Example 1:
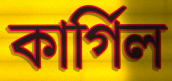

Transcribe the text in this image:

কার্গিল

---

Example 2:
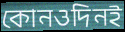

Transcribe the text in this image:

কোনওদিনই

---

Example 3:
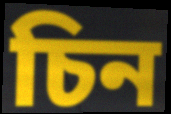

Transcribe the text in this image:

চিন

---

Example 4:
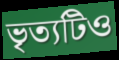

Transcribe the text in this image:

ভৃত্যটিও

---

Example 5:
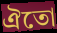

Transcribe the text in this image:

ঐতো